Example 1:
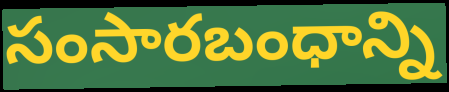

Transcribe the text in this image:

సంసారబంధాన్ని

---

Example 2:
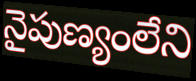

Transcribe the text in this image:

నైపుణ్యంలేని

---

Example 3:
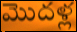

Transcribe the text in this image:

మొదళ్ల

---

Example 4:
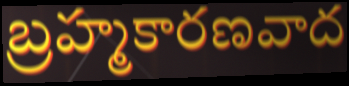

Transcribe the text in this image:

బ్రహ్మకారణవాద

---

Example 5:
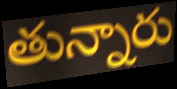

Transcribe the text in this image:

తున్నారు